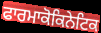
ਫਾਰਮਾਕੋਕਿਨੇਟਿਕ